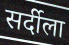
सर्दीला